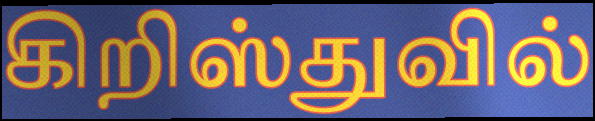
கிறிஸ்துவில்